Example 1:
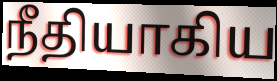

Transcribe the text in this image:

நீதியாகிய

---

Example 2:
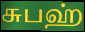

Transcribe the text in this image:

சுபஹ்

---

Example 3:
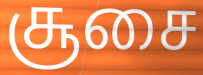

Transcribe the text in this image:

சூசை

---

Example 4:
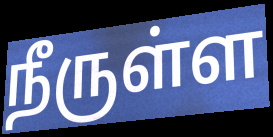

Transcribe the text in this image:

நீருள்ள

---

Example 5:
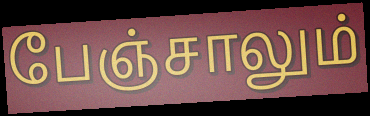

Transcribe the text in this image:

பேஞ்சாலும்